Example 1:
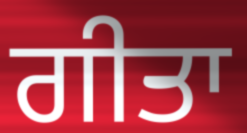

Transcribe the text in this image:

ਗੀਤਾ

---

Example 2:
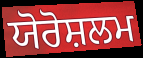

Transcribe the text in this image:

ਯੋਰੋਸ਼ਲਮ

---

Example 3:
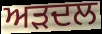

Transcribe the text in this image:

ਅੜਦਲ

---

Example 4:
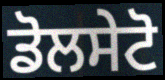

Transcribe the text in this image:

ਡੋਲਸੇਟੋ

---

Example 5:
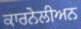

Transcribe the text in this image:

ਕਾਰਨੇਲੀਅਨ